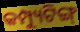
କମ୍ପ୍ୟୁଟିଙ୍ଗ୍